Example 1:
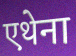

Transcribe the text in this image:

एथेना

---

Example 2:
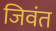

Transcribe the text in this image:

जिवंत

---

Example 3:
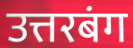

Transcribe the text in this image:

उत्तरबंग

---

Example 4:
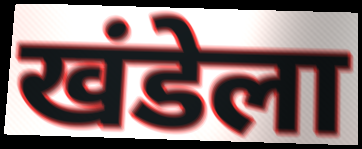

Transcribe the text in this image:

खंडेला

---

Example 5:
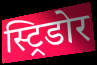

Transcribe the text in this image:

स्ट्रिडोर